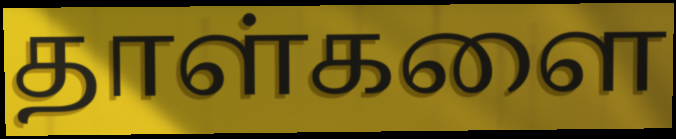
தாள்களை